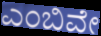
ಎಂಬಿವೇ